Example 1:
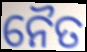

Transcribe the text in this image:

ନୈତ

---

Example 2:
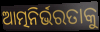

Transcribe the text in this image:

ଆତ୍ମନିର୍ଭରତାକୁ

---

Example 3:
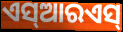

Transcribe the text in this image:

ଏସ୍ଆରଏସ୍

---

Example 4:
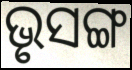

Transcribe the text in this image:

ଭୃସଙ୍ଗ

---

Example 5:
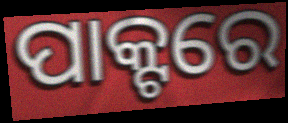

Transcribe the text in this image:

ପାକ୍ଟରେ